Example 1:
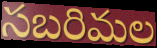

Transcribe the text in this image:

సబరిమల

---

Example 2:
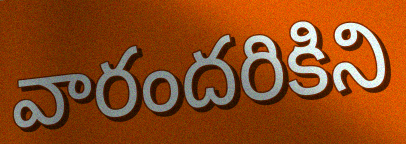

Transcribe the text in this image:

వారందరికిని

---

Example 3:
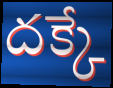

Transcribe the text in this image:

దక్కే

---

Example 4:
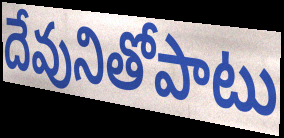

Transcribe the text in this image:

దేవునితోపాటు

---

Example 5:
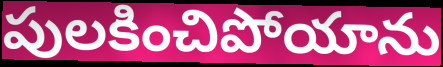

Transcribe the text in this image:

పులకించిపోయాను